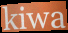
kiwa